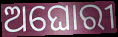
ଅଘୋରୀ